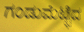
ಗಂಡುಮೆಟ್ಟಿದ